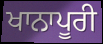
ਖਾਨਾਪੂਰੀ